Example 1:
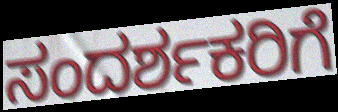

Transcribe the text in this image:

ಸಂದರ್ಶಕರಿಗೆ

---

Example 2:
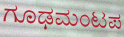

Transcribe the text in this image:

ಗೂಢಮಂಟಪ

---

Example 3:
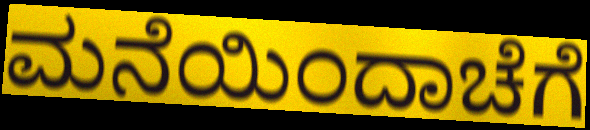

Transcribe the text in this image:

ಮನೆಯಿಂದಾಚೆಗೆ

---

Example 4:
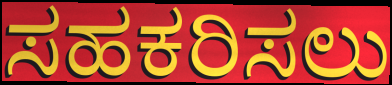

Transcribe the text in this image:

ಸಹಕರಿಸಲು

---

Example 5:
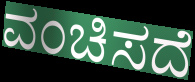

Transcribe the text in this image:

ವಂಚಿಸದೆ